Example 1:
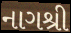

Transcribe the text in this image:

નાગશ્રી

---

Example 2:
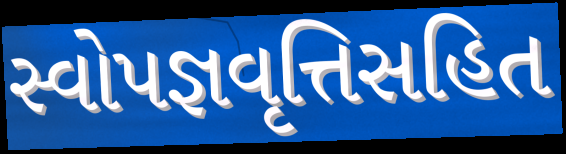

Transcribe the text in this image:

સ્વોપજ્ઞવૃત્તિસહિત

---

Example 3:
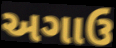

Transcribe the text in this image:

અગાઉ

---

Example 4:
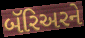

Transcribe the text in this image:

બૅરિઅરને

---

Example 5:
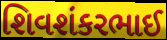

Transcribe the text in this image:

શિવશંકરભાઈ